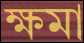
ক্ষমা